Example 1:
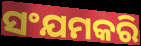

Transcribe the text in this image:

ସଂଯମକରି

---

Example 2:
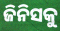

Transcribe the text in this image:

ଜିନିସକୁ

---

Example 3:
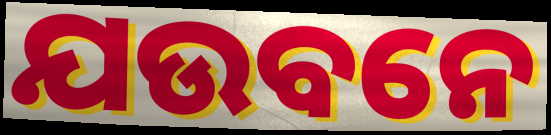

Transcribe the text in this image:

ଯଉବନେ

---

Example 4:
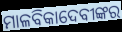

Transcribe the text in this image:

ମାଳବିକାଦେବୀଙ୍କର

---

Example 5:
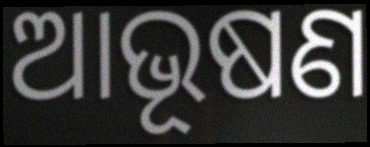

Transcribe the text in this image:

ଆଭୂଷଣ